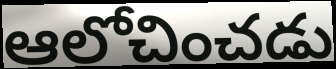
ఆలోచించడు